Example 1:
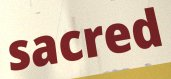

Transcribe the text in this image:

sacred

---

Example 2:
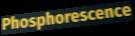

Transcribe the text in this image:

Phosphorescence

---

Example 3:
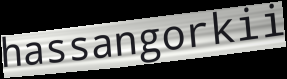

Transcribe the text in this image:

hassangorkii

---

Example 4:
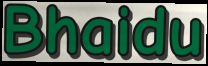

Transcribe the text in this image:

Bhaidu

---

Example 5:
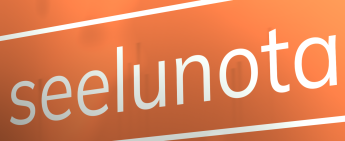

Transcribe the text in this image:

seelunota